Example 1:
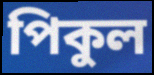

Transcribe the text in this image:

পিকুল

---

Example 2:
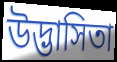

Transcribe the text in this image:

উদ্ভাসিতা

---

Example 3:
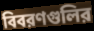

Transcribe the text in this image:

বিবরণগুলির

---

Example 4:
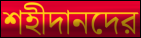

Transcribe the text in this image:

শহীদানদের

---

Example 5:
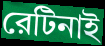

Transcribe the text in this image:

রেটিনাই